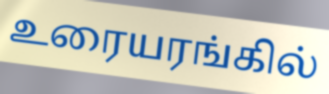
உரையரங்கில்